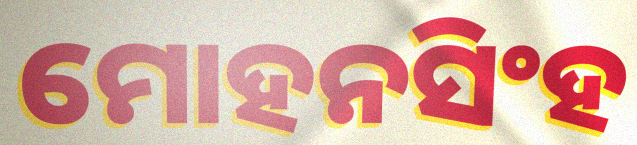
ମୋହନସିଂହ